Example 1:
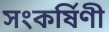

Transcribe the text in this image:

সংকর্ষিণী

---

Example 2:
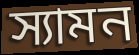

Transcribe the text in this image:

স্যামন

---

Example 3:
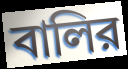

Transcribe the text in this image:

বালির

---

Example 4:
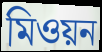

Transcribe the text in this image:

মিওয়ন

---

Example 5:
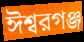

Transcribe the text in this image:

ঈশ্বরগঞ্জ